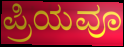
ಪ್ರಿಯವೂ